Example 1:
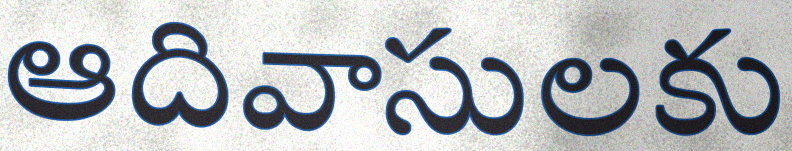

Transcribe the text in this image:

ఆదివాసులకు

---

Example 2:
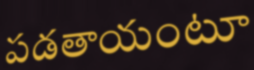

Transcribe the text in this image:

పడతాయంటూ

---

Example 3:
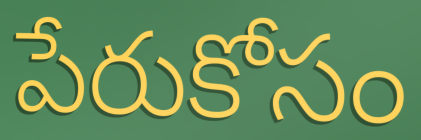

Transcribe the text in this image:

పేరుకోసం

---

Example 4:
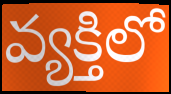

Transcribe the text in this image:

వ్యక్తిలో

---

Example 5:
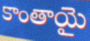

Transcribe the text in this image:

కాంతాయై